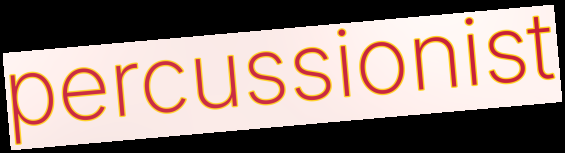
percussionist